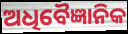
ଅଧିବୈଜ୍ଞାନିକ